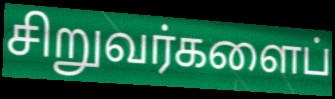
சிறுவர்களைப்